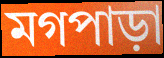
মগপাড়া